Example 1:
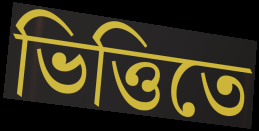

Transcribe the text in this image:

ভিত্তিতে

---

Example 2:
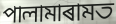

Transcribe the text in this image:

পালামাৰামত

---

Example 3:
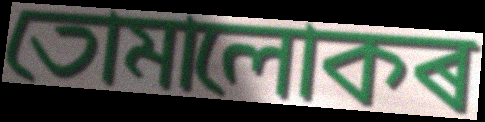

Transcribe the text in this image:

তোমালোকৰ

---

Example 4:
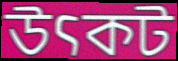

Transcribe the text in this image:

উৎকট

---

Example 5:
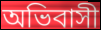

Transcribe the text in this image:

অভিবাসী